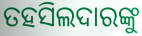
ତହସିଲଦାରଙ୍କୁ